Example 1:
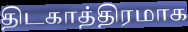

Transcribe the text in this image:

திடகாத்திரமாக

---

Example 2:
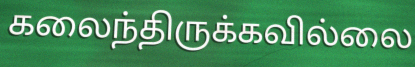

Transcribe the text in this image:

கலைந்திருக்கவில்லை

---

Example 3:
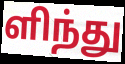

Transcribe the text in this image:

ளிந்து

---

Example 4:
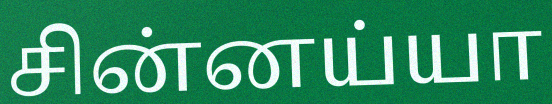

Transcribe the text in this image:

சின்னய்யா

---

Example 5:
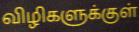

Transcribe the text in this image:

விழிகளுக்குள்